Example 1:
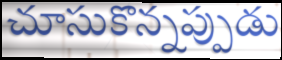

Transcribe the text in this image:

చూసుకొన్నప్పుడు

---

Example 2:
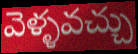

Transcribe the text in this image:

వెళ్ళవచ్చు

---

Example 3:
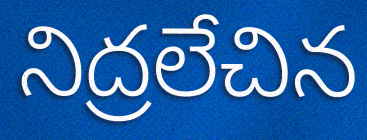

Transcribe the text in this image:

నిద్రలేచిన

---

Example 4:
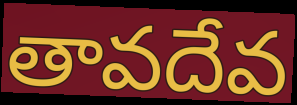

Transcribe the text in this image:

తావదేవ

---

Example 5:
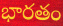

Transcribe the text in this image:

భారతం